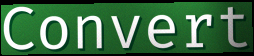
Convert